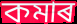
কমাৰ